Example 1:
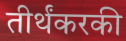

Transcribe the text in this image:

तीर्थंकरकी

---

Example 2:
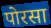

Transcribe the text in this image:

पोरसा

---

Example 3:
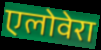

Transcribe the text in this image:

एलोवेरा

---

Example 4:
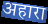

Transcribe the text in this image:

अहारा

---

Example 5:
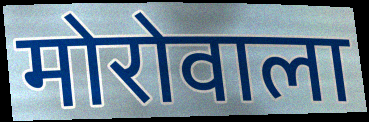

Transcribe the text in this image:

मोरोवाला